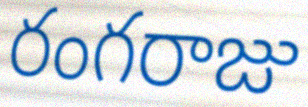
రంగరాజు